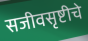
सजीवसृष्टीचे